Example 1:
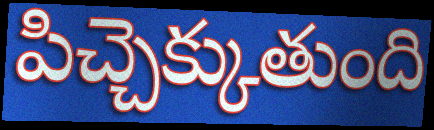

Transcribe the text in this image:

పిచ్చెక్కుతుంది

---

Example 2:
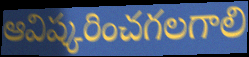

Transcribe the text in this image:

ఆవిష్కరించగలగాలి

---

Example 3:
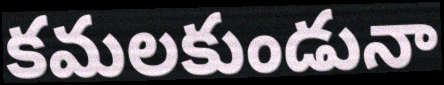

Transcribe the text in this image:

కమలకుండునా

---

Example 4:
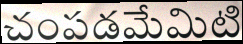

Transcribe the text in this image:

చంపడమేమిటి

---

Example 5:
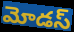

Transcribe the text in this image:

మోడస్